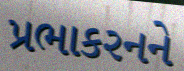
પ્રભાકરનને